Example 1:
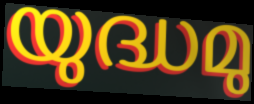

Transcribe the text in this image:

യുദ്ധമു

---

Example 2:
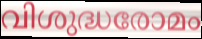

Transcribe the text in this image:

വിശുദ്ധരോമം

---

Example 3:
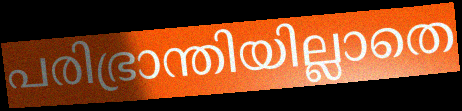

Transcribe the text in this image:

പരിഭ്രാന്തിയില്ലാതെ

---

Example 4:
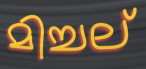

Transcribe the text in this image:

മിച്ചല്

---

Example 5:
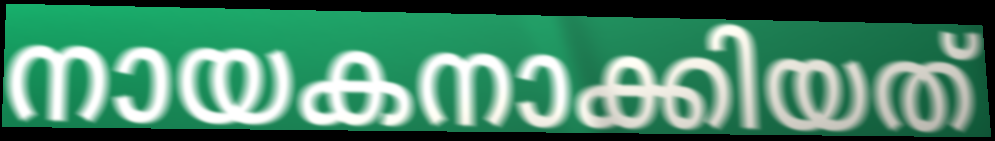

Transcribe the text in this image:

നായകനാക്കിയത്